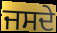
ਜਸਦੇ